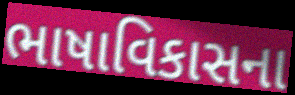
ભાષાવિકાસના